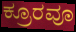
ಕ್ರೂರವೂ